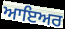
ਆਇਅਰ